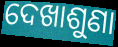
ଦେଖାଶୁଣା